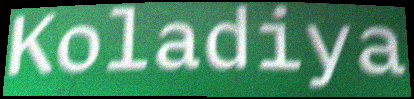
Koladiya